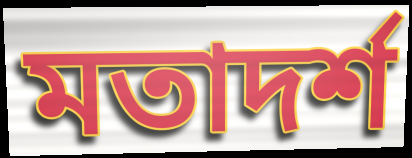
মতাদৰ্শ